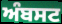
ਅੰਬਸਟ